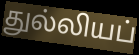
துல்லியப்